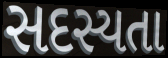
સદસ્યતા